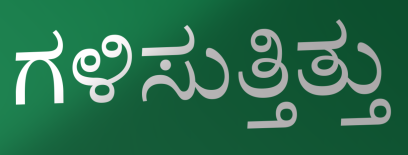
ಗಳಿಸುತ್ತಿತ್ತು